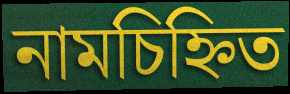
নামচিহ্নিত